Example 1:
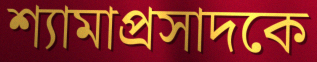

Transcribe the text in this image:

শ্যামাপ্রসাদকে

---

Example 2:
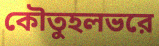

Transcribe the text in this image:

কৌতুহলভরে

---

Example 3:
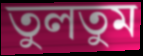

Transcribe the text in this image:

তুলতুম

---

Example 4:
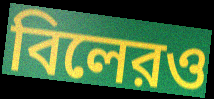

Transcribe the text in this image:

বিলেরও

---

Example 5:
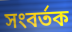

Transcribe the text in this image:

সংবর্তক